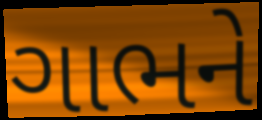
ગાભને